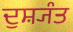
ਦੁਸ਼੍ਯੰਤ